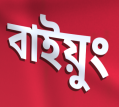
বাইয়ুং